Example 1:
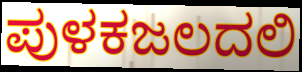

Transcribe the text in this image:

ಪುಳಕಜಲದಲಿ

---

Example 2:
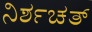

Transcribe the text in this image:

ನಿರ್ಶಚತ್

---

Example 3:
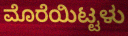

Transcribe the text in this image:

ಮೊರೆಯಿಟ್ಟಳು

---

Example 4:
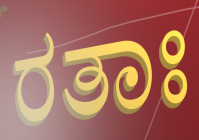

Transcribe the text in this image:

ರತಾಃ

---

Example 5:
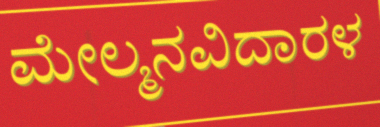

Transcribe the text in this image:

ಮೇಲ್ಮನವಿದಾರಳ